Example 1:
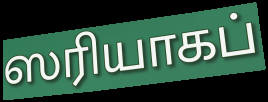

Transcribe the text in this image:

ஸரியாகப்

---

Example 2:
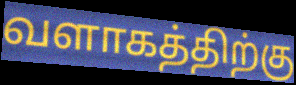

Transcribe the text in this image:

வளாகத்திற்கு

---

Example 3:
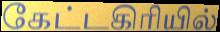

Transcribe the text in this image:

கேட்டகிரியில்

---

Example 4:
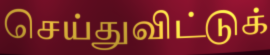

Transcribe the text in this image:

செய்துவிட்டுக்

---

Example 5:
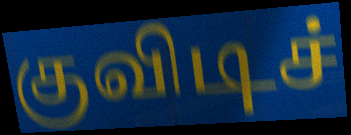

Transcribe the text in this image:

குவிடிச்